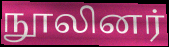
நூலினர்